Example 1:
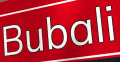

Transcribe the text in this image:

Bubali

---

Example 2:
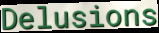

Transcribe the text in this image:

Delusions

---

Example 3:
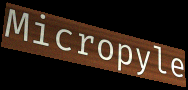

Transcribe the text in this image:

Micropyle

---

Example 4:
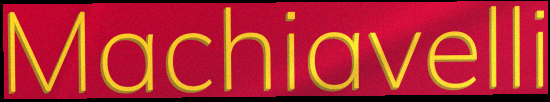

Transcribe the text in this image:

Machiavelli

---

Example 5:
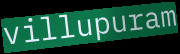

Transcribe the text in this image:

villupuram